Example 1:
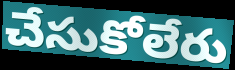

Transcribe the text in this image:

చేసుకోలేరు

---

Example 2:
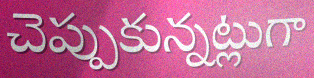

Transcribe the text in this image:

చెప్పుకున్నట్లుగా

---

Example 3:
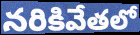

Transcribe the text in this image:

నరికివేతలో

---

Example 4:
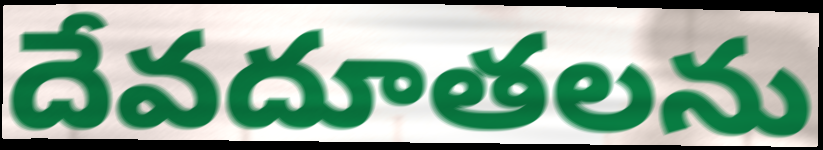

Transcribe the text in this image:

దేవదూతలను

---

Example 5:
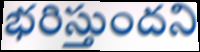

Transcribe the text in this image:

భరిస్తుందని